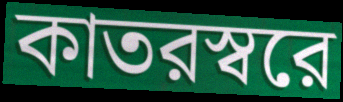
কাতরস্বরে